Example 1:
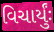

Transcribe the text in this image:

વિચાર્યુંઃ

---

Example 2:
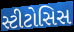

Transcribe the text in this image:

સ્ટીટોસિસ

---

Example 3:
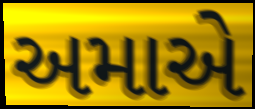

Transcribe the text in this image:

અમાએ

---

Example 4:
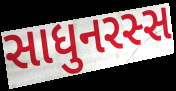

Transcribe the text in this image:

સાધુનરસ્સ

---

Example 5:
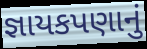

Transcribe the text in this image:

જ્ઞાયકપણાનું